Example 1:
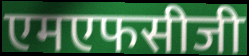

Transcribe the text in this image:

एमएफसीजी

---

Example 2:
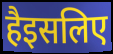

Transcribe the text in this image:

हैइसलिए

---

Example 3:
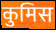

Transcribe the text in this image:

कुमिस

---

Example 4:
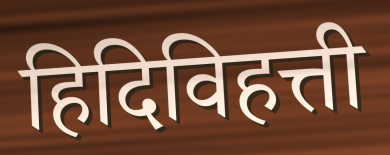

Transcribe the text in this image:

हिदिविहत्ती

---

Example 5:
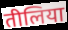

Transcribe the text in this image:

तीलिया